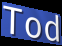
Tod